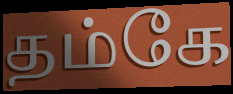
தம்கே